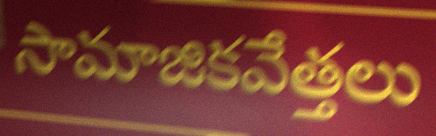
సామాజికవేత్తలు